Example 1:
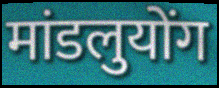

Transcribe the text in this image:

मांडलुयोंग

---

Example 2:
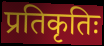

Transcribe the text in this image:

प्रतिकृतिः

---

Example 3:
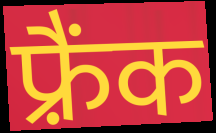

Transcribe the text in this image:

फ़्रैंक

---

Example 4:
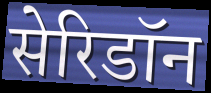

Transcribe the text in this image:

सेरिडॉन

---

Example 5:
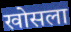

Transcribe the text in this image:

खोसला